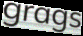
grags